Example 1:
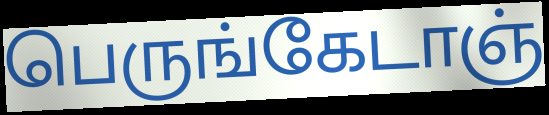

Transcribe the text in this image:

பெருங்கேடாஞ்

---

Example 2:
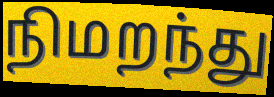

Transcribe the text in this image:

நிமறந்து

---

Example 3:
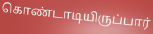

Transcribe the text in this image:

கொண்டாடியிருப்பார்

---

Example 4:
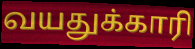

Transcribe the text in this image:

வயதுக்காரி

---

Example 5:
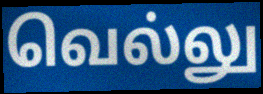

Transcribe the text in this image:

வெல்லு